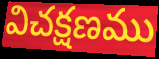
విచక్షణము